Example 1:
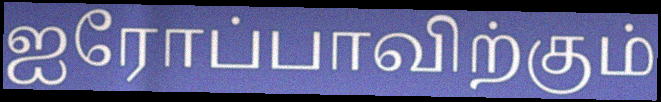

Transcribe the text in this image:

ஐரோப்பாவிற்கும்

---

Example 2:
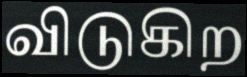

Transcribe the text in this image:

விடுகிற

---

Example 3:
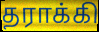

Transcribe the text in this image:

தராக்கி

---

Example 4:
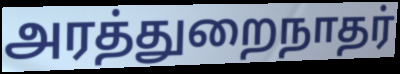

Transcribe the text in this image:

அரத்துறைநாதர்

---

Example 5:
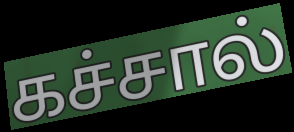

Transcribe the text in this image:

கச்சால்